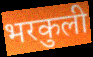
भरकुली